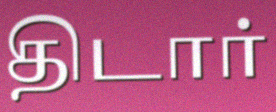
திடார்